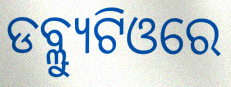
ଡବ୍ଲ୍ୟୁଟିଓରେ